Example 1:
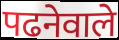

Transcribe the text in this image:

पढनेवाले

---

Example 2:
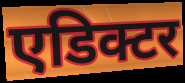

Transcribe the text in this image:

एडिक्टर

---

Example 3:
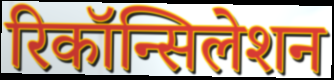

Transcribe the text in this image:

रिकॉन्सिलेशन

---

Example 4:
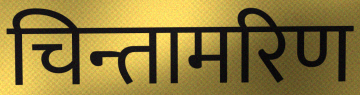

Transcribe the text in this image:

चिन्तामरिण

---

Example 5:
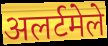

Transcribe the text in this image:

अलर्टमेले